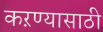
कऱण्यासाठी